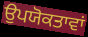
ਉਪਯੋਕਤਾਵਾਂ